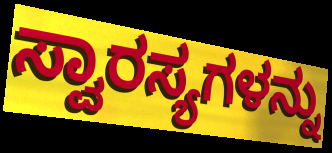
ಸ್ವಾರಸ್ಯಗಳನ್ನು